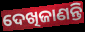
ଦେଖିଜାଣନ୍ତି